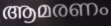
ആമരണം